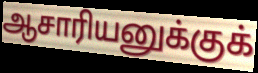
ஆசாரியனுக்குக்